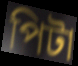
পিটা